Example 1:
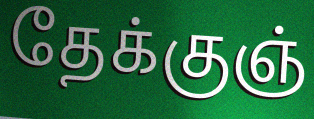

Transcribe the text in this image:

தேக்குஞ்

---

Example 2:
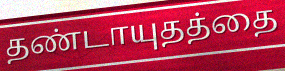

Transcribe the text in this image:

தண்டாயுதத்தை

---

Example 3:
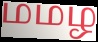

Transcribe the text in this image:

மமழ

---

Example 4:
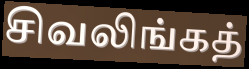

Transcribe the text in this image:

சிவலிங்கத்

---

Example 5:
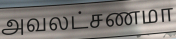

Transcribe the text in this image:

அவலட்சணமா